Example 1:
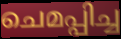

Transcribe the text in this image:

ചെമപ്പിച്ച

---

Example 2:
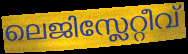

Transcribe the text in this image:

ലെജിസ്ലേറ്റീവ്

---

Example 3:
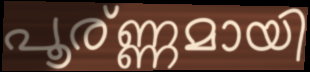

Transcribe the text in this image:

പൂര്ണ്ണമായി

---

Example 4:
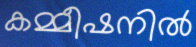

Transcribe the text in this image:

കമ്മീഷനിൽ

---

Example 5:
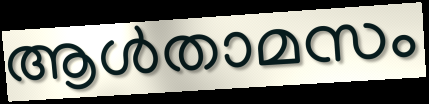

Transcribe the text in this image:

ആൾതാമസം